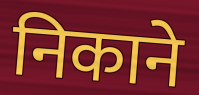
निकाने